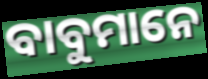
ବାବୁମାନେ